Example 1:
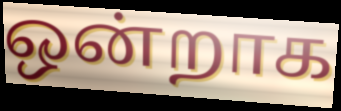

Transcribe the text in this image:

ஒன்றாக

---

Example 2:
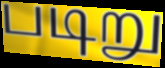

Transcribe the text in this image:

படிறு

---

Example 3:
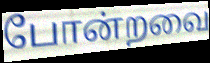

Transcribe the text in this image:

போன்றவை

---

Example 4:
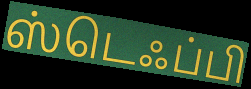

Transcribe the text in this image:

ஸ்டெஃப்பி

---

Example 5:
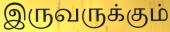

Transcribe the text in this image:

இருவருக்கும்